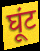
घूंट